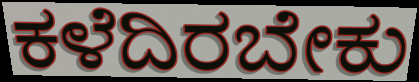
ಕಳೆದಿರಬೇಕು